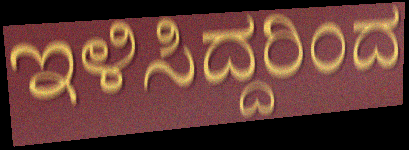
ಇಳಿಸಿದ್ದರಿಂದ